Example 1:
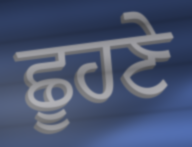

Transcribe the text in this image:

ਛੂਹਣੇ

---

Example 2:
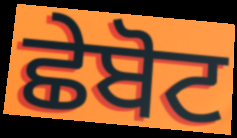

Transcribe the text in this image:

ਛੇਬੋਟ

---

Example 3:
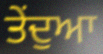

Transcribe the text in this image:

ਤੇਂਦੁਆ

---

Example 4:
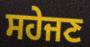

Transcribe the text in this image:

ਸਹੇਜਣ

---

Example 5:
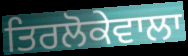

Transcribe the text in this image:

ਤਿਰਲੋਕੇਵਾਲਾ